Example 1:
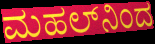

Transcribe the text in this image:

ಮಹಲ್‌ನಿಂದ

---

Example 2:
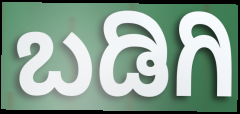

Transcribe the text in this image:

ಬಡಿಗಿ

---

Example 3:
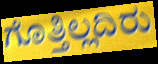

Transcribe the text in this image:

ಗೊತ್ತಿಲ್ಲದಿರು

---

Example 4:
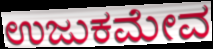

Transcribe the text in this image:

ಉಜುಕಮೇವ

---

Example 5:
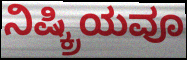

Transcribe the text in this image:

ನಿಷ್ಕ್ರಿಯವೂ